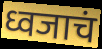
ध्वजाचं